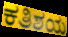
ಕತಿಶಯ